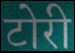
टोरी